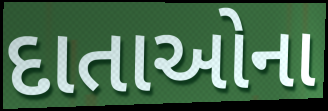
દાતાઓના